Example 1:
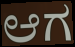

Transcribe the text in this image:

ಆಗ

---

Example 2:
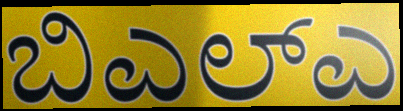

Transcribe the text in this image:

ಬಿಎಲ್ಎ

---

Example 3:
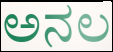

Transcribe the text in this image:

ಅನಲ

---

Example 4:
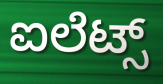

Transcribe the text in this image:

ಐಲೆಟ್ಸ್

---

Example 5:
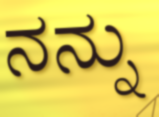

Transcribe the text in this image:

ನನ್ನು